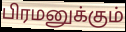
பிரமனுக்கும்